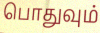
பொதுவும்